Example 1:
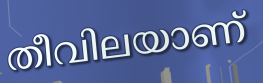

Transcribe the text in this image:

തീവിലയാണ്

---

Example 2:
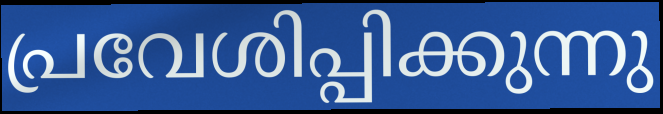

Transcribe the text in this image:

പ്രവേശിപ്പിക്കുന്നു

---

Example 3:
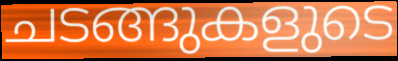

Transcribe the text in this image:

ചടങ്ങുകളുടെ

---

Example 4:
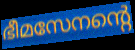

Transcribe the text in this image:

ഭീമസേനന്റെ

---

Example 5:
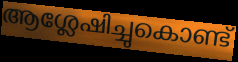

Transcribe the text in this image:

ആശ്ലേഷിച്ചുകൊണ്ട്